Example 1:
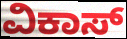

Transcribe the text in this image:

ವಿಕಾಸ್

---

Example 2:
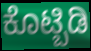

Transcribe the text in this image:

ಕೊಟ್ಬಿಡಿ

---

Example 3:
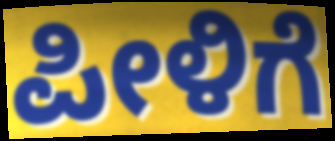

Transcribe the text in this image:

ಪೀಳಿಗೆ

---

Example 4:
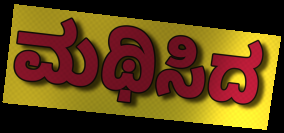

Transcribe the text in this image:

ಮಥಿಸಿದ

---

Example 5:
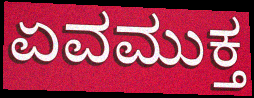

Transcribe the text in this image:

ಏವಮುಕ್ತ